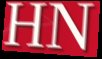
HN